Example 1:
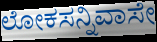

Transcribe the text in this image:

ಲೋಕಸನ್ನಿವಾಸೇ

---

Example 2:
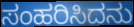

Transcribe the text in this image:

ಸಂಹರಿಸಿದನು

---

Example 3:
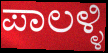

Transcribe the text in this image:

ಪಾಲಳ್ಳಿ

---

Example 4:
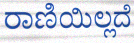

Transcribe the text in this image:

ರಾಣಿಯಿಲ್ಲದೆ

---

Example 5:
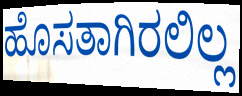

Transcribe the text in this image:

ಹೊಸತಾಗಿರಲಿಲ್ಲ